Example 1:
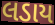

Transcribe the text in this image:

લડાય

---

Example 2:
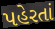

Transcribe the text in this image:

પહેરતાં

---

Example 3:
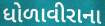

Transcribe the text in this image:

ધોળાવીરાના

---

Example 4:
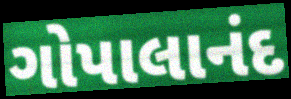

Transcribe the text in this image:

ગોપાલાનંદ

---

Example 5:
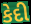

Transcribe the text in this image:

કેદી